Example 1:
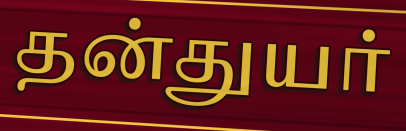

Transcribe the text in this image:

தன்துயர்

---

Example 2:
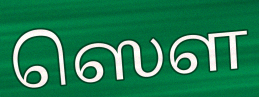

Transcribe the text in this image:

ஸௌ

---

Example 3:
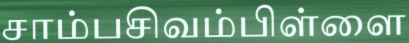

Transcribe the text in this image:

சாம்பசிவம்பிள்ளை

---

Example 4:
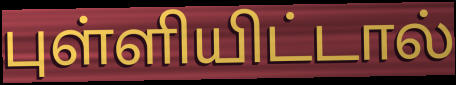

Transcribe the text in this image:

புள்ளியிட்டால்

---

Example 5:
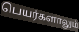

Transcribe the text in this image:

பெயர்களாலும்